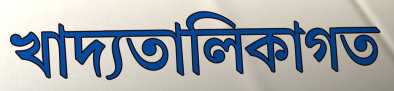
খাদ্যতালিকাগত